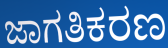
ಜಾಗತಿಕರಣ